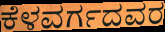
ಕೆಳವರ್ಗದವರ